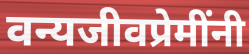
वन्यजीवप्रेमींनी